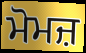
ਮੋਮਜ਼